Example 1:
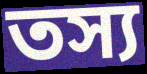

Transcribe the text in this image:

তস্য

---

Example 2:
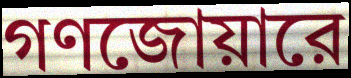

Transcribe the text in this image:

গণজোয়ারে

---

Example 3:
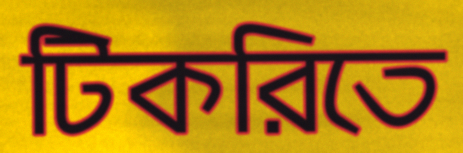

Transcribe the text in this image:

টিকরিতে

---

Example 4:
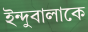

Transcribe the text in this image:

ইন্দুবালাকে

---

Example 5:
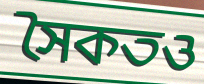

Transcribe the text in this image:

সৈকতও